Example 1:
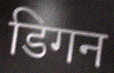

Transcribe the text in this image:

डिगन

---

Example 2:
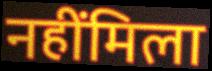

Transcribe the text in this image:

नहींमिला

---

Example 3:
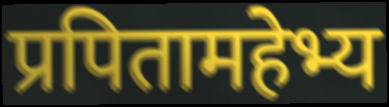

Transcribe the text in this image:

प्रपितामहेभ्य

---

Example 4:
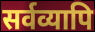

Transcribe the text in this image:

सर्वव्यापि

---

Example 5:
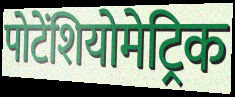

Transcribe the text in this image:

पोटेंशियोमेट्रिक